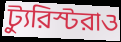
ট্যুরিস্টরাও